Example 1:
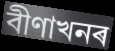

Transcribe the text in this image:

বীণাখনৰ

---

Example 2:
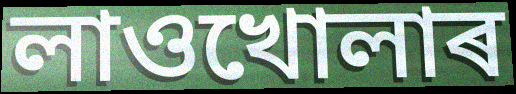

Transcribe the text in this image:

লাওখোলাৰ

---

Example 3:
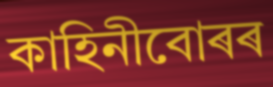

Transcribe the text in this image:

কাহিনীবোৰৰ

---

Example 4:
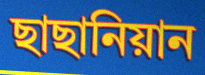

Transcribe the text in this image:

ছাছানিয়ান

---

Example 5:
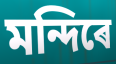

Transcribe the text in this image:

মন্দিৰে